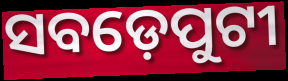
ସବଡ଼େପୁଟୀ